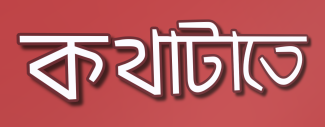
কথাটাতে